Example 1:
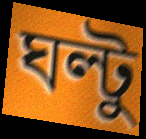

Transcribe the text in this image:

ঘল্টু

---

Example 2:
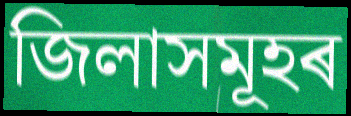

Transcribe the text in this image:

জিলাসমূহৰ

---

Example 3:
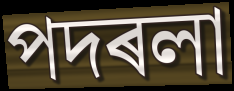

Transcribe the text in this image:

পদৰলা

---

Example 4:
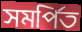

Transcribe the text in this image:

সমৰ্পিত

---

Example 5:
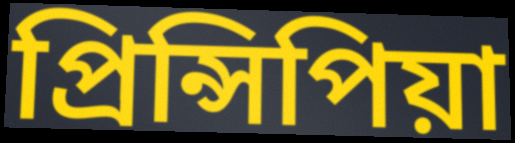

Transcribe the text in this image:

প্ৰিন্সিপিয়া